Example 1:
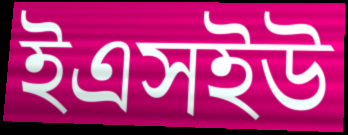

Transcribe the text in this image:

ইএসইউ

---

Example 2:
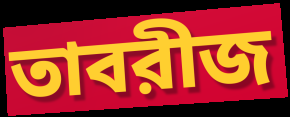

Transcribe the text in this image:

তাবরীজ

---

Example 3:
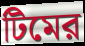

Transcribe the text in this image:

টিমের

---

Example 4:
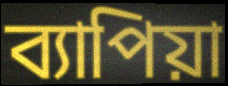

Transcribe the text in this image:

ব্যাপিয়া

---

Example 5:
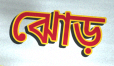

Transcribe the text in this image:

ঝোড়